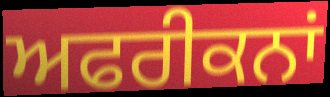
ਅਫਰੀਕਨਾਂ